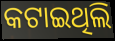
କଟାଇଥିଲି